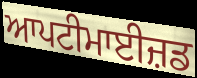
ਆਪਟੀਮਾਈਜ਼ਡ